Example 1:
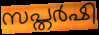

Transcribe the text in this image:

സപ്തർഷി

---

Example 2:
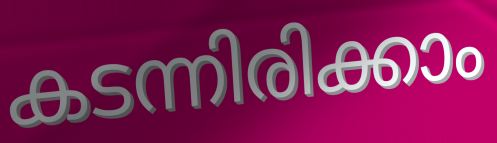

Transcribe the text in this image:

കടന്നിരിക്കാം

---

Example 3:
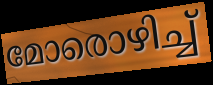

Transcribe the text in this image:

മോരൊഴിച്ച്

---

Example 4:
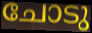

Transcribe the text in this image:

ചോടു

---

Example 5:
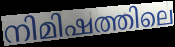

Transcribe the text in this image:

നിമിഷത്തിലെ